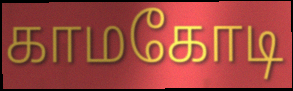
காமகோடி